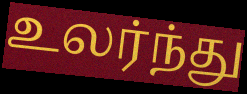
உலர்ந்து